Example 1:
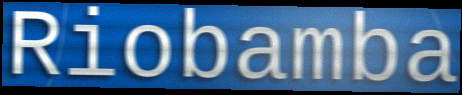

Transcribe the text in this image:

Riobamba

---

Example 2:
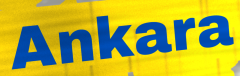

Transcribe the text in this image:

Ankara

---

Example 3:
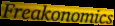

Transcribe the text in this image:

Freakonomics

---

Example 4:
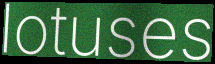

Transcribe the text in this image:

lotuses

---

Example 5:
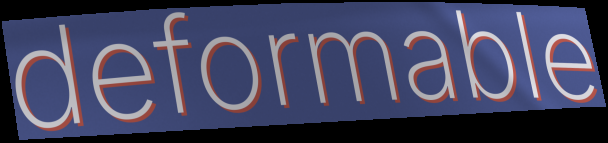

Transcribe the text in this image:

deformable